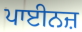
ਪਾਈਨਜ਼